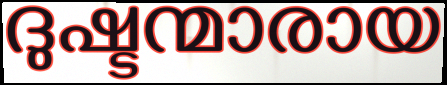
ദുഷ്ടന്മാരായ